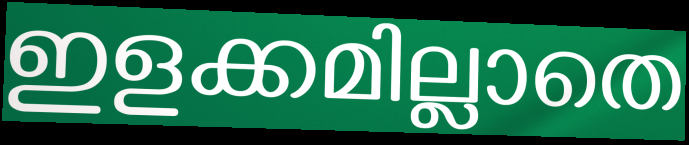
ഇളക്കമില്ലാതെ